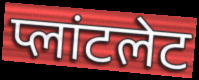
प्लांटलेट